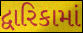
દ્વારિકામાં